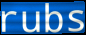
rubs